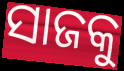
ସାଜକୁ